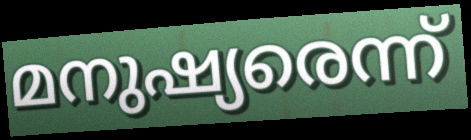
മനുഷ്യരെന്ന്